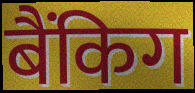
बैंकिग